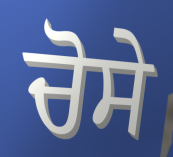
ਚੋਸੇ